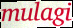
mulagi